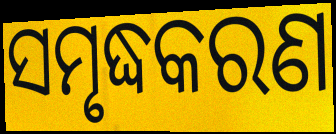
ସମୃଦ୍ଧକରଣ